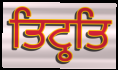
ਤਿਟ੍ਠਤਿ